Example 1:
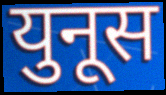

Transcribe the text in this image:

युनूस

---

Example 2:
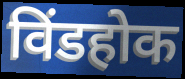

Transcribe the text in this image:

विंडहोक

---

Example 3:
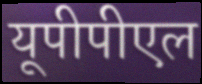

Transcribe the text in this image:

यूपीपीएल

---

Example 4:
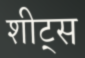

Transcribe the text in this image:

शीट्स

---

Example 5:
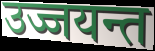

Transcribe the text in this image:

उज्जयन्त